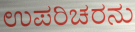
ಉಪರಿಚರನು